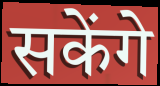
सकेंगे